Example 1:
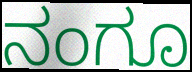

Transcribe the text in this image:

ನಂಗೂ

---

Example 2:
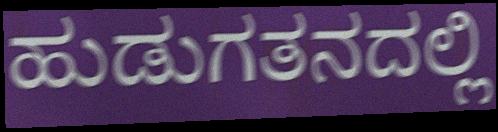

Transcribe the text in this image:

ಹುಡುಗತನದಲ್ಲಿ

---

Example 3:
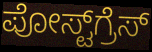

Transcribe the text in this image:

ಪೋಸ್ಟ್‌ಗ್ರೆಸ್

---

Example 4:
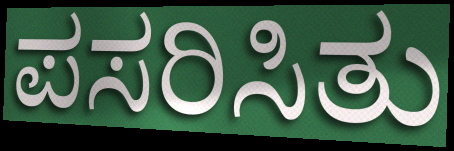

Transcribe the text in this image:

ಪಸರಿಸಿತು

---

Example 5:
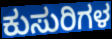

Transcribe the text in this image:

ಕುಸುರಿಗಳ